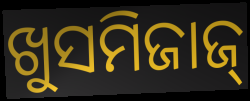
ଖୁସମିଜାଜ୍